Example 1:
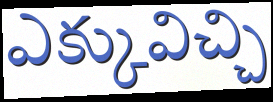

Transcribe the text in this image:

ఎక్కువిచ్చి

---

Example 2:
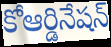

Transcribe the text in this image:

కోఆర్డినేషన్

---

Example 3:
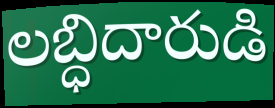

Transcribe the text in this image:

లబ్ధిదారుడి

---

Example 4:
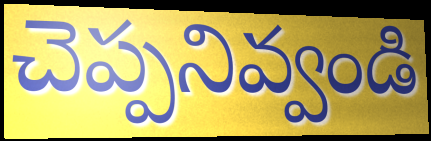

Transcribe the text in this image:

చెప్పనివ్వండి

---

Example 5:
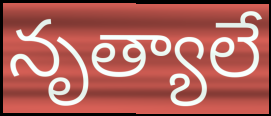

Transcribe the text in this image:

నృత్యాలే